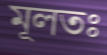
মূলতঃ